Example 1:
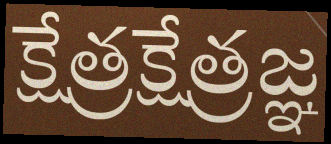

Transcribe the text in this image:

క్షేత్రక్షేత్రజ్ఞ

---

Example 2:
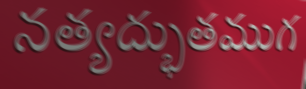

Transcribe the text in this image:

నత్యద్భుతముగ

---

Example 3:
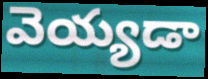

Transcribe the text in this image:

వెయ్యడా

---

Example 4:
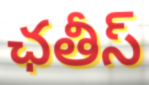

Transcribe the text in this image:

ఛతీస్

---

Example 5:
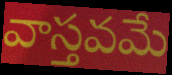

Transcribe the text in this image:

వాస్తవమే